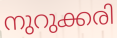
നുറുക്കരി